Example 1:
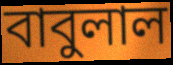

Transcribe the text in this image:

বাবুলাল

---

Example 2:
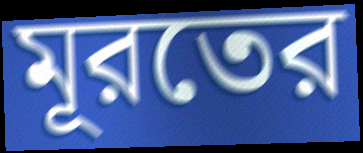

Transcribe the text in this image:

মূরতের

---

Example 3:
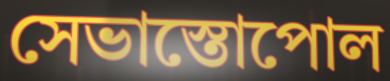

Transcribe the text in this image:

সেভাস্তোপোল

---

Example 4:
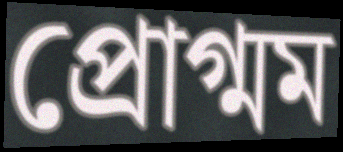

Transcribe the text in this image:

প্রোগ্মম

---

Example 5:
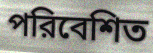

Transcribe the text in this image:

পরিবেশিত